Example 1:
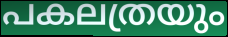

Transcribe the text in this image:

പകലത്രയും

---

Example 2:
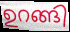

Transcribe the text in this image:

ഉറങ്ങി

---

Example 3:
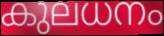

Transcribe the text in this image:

കുലധനം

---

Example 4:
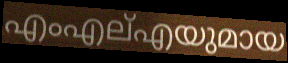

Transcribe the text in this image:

എംഎല്എയുമായ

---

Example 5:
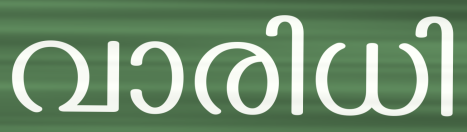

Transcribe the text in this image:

വാരിധി